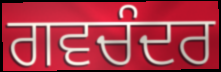
ਗਵਚੰਦਰ